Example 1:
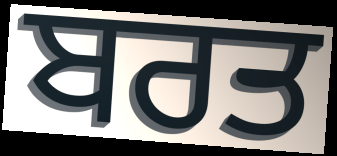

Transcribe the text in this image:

ਬਰਤ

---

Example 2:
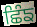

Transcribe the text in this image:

ਛਿੰਙ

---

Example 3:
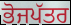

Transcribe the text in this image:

ਭੋਜਪੱਤਰ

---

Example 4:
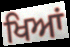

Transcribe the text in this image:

ਖਿਆਂ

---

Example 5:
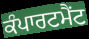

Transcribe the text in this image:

ਕੰਪਾਰਟਮੈਂਟ